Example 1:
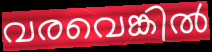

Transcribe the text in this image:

വരവെങ്കിൽ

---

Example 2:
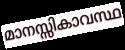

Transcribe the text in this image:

മാനസ്സികാവസ്ഥ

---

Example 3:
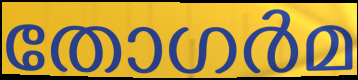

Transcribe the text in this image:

തോഗർമ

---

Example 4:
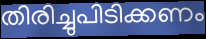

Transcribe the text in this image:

തിരിച്ചുപിടിക്കണം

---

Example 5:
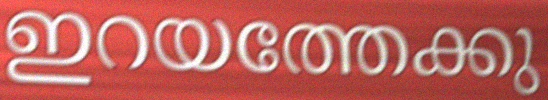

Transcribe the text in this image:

ഇറയത്തേക്കു